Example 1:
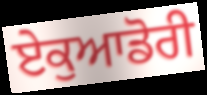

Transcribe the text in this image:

ਏਕੁਆਡੋਰੀ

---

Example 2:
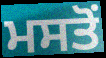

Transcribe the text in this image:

ਮਸਤੋਂ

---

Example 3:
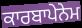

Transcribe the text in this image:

ਕਾਰਬਾਪੇਨੇਮ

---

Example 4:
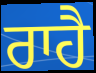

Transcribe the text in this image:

ਰਾਹੈ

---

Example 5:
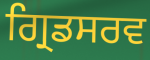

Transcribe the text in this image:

ਗ੍ਰਿਡਸਰਵ